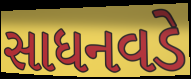
સાધનવડે